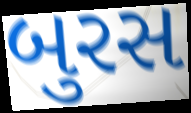
બુરસ